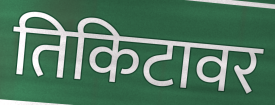
तिकिटावर